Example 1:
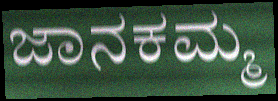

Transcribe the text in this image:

ಜಾನಕಮ್ಮ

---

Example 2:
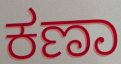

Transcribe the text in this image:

ಕಣಾ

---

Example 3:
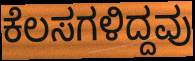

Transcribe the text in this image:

ಕೆಲಸಗಳಿದ್ದವು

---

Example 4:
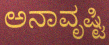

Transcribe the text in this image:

ಅನಾವೃಷ್ಟಿ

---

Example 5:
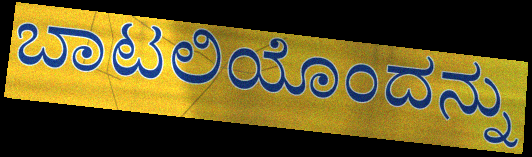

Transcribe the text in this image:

ಬಾಟಲಿಯೊಂದನ್ನು